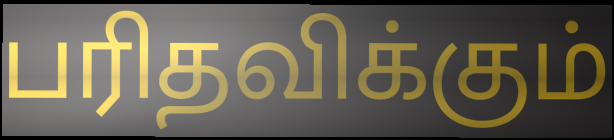
பரிதவிக்கும்